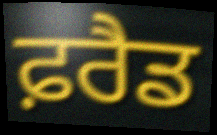
ਫ਼ਰੈਡ